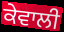
ਕੇਵਾਲੀ